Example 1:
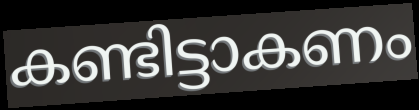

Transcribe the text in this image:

കണ്ടിട്ടാകണം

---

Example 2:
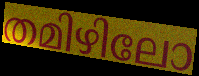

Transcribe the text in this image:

തമിഴിലോ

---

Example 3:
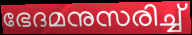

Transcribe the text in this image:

ഭേദമനുസരിച്ച്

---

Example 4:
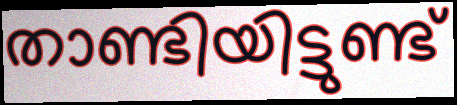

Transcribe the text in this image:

താണ്ടിയിട്ടുണ്ട്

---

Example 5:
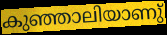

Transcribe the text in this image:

കുഞ്ഞാലിയാണു്